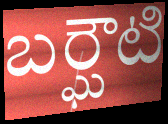
బర్ఘౌటి